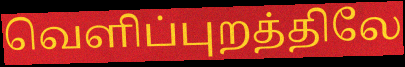
வெளிப்புறத்திலே